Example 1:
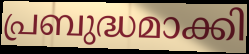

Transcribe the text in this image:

പ്രബുദ്ധമാക്കി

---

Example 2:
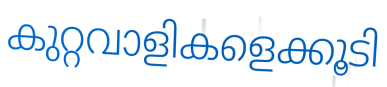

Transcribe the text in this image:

കുറ്റവാളികളെക്കൂടി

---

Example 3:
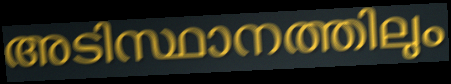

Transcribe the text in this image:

അടിസ്ഥാനത്തിലും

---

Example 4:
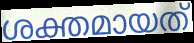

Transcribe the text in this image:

ശക്തമായത്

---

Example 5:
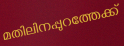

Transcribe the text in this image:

മതിലിനപ്പുറത്തേക്ക്